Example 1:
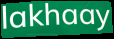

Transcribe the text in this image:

lakhaay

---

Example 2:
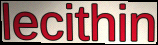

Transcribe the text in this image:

lecithin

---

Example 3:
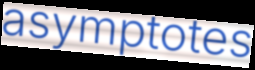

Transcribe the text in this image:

asymptotes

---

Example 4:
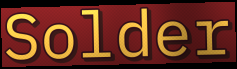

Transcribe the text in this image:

Solder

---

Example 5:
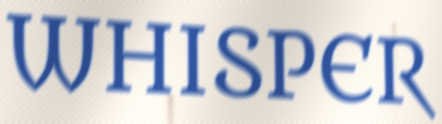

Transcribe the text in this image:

WHISPER